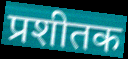
प्रशीतक